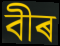
বীৰ